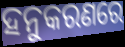
ହନୁକରଣରେ